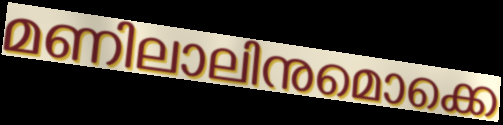
മണിലാലിനുമൊക്കെ